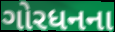
ગોરધનના